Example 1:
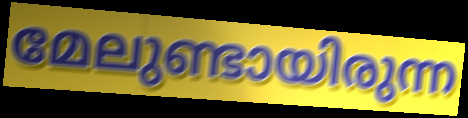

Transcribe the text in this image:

മേലുണ്ടായിരുന്ന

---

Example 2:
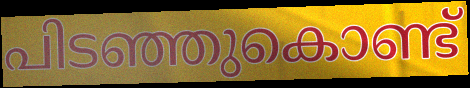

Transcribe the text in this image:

പിടഞ്ഞുകൊണ്ട്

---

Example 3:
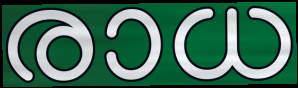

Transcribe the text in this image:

രാധ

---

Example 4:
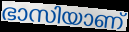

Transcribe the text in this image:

ഭാസിയാണ്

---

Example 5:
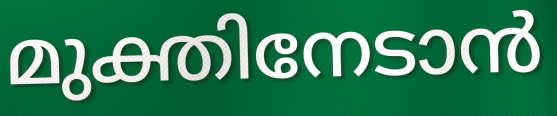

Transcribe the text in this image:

മുക്തിനേടാൻ